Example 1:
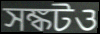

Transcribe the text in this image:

সঙ্কটও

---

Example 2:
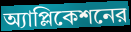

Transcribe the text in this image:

অ্যাপ্লিকেশনের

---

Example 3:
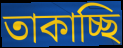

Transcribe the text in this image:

তাকাচ্ছি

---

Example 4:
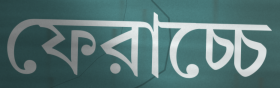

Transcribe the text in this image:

ফেরাচ্চে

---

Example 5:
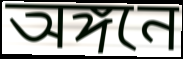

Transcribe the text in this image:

অঙ্গনে